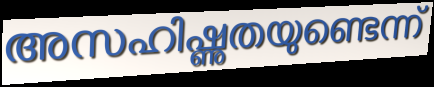
അസഹിഷ്ണുതയുണ്ടെന്ന്